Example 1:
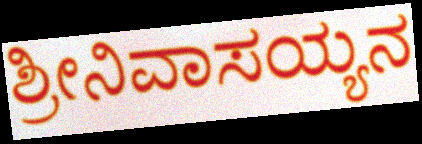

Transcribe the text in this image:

ಶ್ರೀನಿವಾಸಯ್ಯನ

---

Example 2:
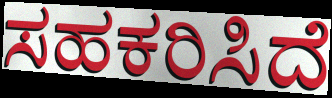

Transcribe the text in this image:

ಸಹಕರಿಸಿದೆ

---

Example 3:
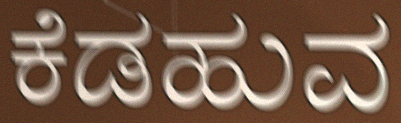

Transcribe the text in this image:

ಕೆಡಹುವ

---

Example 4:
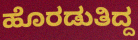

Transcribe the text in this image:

ಹೊರಡುತಿದ್ದ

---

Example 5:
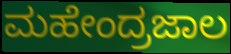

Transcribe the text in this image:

ಮಹೇಂದ್ರಜಾಲ